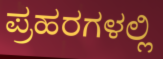
ಪ್ರಹರಗಳಲ್ಲಿ